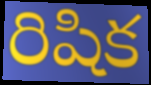
రిషిక